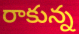
రాకున్న